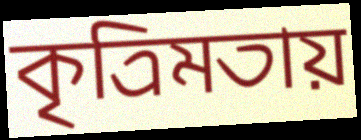
কৃত্রিমতায়